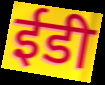
ईडी